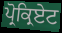
ਪ੍ਰੋਕ੍ਰਿਏਟ